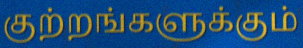
குற்றங்களுக்கும்